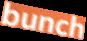
bunch